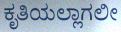
ಕೃತಿಯಲ್ಲಾಗಲೀ